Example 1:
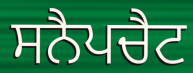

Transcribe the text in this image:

ਸਨੈਪਚੈਟ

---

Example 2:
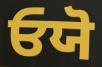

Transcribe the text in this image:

ਓਯੋ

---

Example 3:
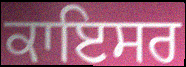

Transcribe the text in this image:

ਕਾਇਸਰ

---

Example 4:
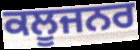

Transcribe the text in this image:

ਕਲੂਜਨਰ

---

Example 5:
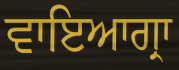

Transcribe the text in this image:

ਵਾਇਆਗ੍ਰਾ